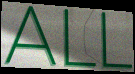
ALL